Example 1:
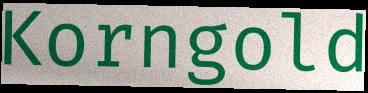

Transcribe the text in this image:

Korngold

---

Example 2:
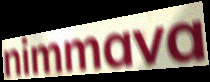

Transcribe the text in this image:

nimmava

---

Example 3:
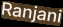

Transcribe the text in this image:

Ranjani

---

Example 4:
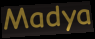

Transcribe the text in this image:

Madya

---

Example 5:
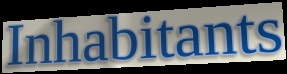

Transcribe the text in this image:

Inhabitants